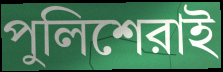
পুলিশেরাই